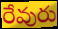
రేవురు